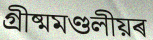
গ্ৰীষ্মমণ্ডলীয়ৰ